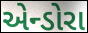
એન્ડોરા